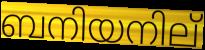
ബനിയനില്